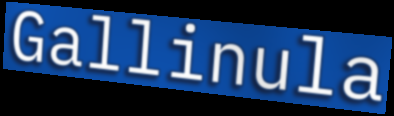
Gallinula